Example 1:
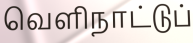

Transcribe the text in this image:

வெளிநாட்டுப்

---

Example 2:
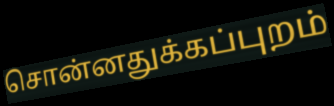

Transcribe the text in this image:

சொன்னதுக்கப்புறம்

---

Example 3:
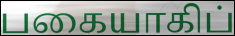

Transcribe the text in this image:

பகையாகிப்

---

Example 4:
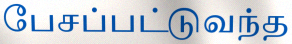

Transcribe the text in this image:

பேசப்பட்டுவந்த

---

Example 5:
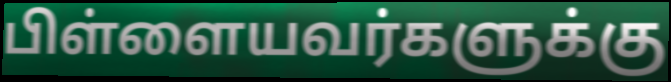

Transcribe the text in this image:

பிள்ளையவர்களுக்கு